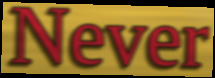
Never